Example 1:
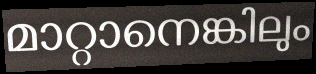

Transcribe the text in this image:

മാറ്റാനെങ്കിലും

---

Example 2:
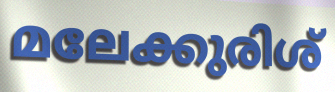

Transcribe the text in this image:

മലേക്കുരിശ്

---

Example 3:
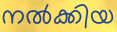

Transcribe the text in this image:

നൽക്കിയ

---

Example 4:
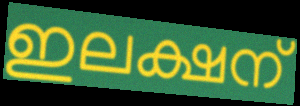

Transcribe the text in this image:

ഇലക്ഷന്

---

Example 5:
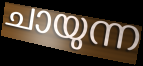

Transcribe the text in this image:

ചായുന്ന